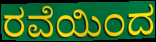
ರವೆಯಿಂದ